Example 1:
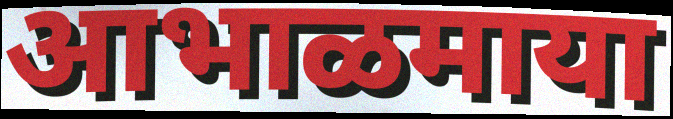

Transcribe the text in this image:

आभाळमाया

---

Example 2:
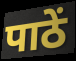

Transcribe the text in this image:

पाठें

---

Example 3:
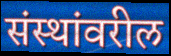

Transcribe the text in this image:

संस्थांवरील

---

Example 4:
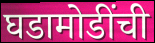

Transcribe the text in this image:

घडामोडींची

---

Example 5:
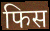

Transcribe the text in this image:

फिस